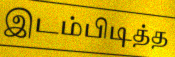
இடம்பிடித்த